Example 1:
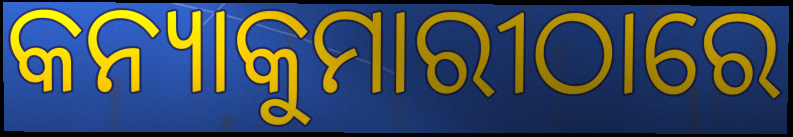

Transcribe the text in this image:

କନ୍ୟାକୁମାରୀଠାରେ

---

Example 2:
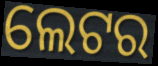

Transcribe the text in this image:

ଲେଟର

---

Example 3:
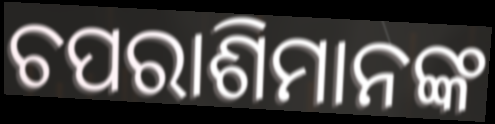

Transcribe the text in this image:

ଚପରାଶିମାନଙ୍କ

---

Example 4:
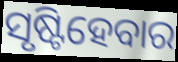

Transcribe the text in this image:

ସୃଷ୍ଟିହେବାର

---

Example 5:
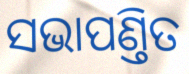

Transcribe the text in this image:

ସଭାପଣ୍ତିତ